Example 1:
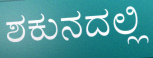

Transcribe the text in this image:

ಶಕುನದಲ್ಲಿ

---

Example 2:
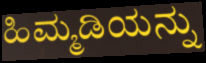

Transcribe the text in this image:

ಹಿಮ್ಮಡಿಯನ್ನು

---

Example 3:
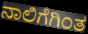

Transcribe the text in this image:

ನಾಲಿಗೆಗಿಂತ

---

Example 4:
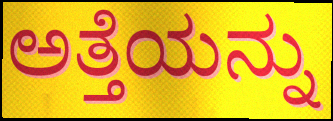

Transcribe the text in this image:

ಅತ್ತೆಯನ್ನು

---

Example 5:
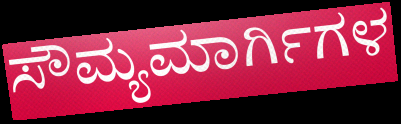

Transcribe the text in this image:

ಸೌಮ್ಯಮಾರ್ಗಿಗಳ